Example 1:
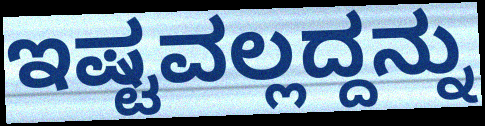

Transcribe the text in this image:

ಇಷ್ಟವಲ್ಲದ್ದನ್ನು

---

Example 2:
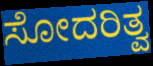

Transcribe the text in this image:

ಸೋದರಿತ್ವ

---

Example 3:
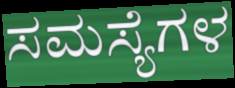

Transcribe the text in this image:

ಸಮಸ್ಯೆಗಳ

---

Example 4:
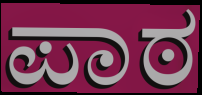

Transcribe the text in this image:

ಪಾಠ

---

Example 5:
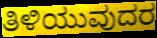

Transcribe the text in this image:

ತಿಳಿಯುವುದರ